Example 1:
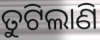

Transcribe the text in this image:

ତୁଟିଲାଣି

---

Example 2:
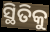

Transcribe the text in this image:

ସ୍ଥିତିକୁ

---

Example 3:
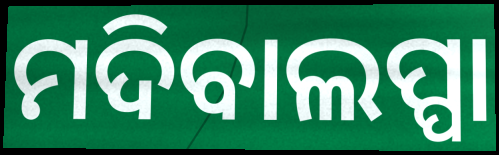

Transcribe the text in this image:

ମଦିବାଲପ୍ପା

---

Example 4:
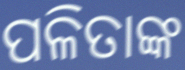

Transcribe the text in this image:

ପଳିତାଙ୍କ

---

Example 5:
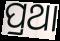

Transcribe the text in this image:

ପ୍ରଥା